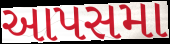
આપસમા